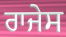
ਰਾਜੇਸ